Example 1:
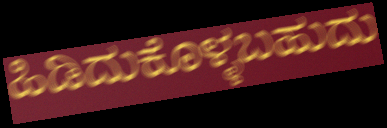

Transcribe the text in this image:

ಹಿಡಿದುಕೊಳ್ಳಬಹುದು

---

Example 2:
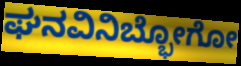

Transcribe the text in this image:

ಘನವಿನಿಬ್ಭೋಗೋ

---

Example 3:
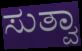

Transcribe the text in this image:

ಸುತ್ವಾ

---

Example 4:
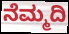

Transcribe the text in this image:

ನೆಮ್ಮದಿ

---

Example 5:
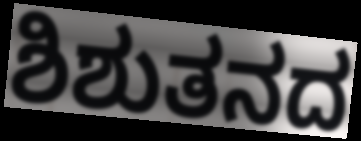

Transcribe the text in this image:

ಶಿಶುತನದ